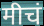
मीचं